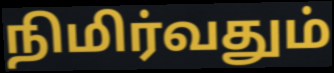
நிமிர்வதும்